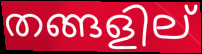
തങ്ങളില്